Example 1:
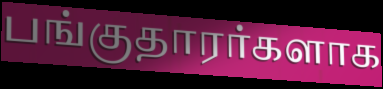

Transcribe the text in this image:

பங்குதாரர்களாக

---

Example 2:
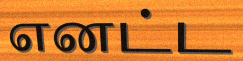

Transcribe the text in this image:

எனட்ட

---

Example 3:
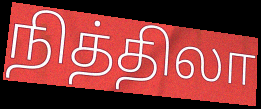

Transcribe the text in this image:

நித்திலா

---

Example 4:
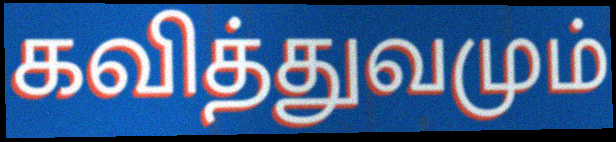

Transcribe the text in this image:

கவித்துவமும்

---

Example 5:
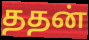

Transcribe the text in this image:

ததன்